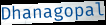
Dhanagopal